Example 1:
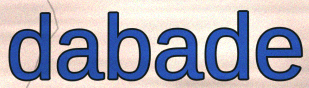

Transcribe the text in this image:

dabade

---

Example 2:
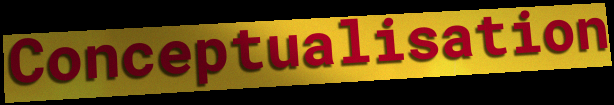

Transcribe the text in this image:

Conceptualisation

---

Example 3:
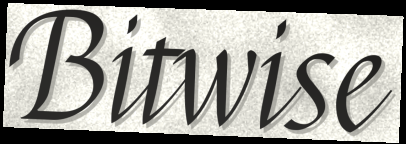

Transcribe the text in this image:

Bitwise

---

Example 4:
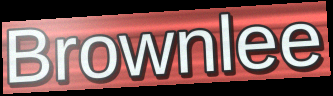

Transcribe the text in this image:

Brownlee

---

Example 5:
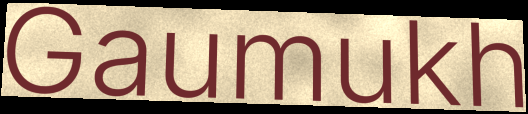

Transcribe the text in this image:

Gaumukh